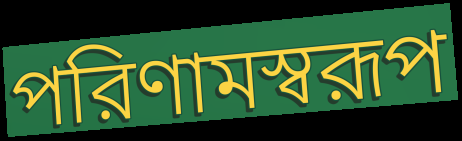
পরিণামস্বরূপ